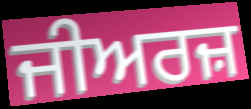
ਜੀਅਰਜ਼